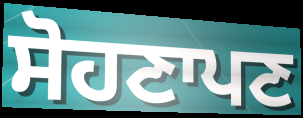
ਸੋਹਣਾਪਣ